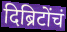
दिब्रिटोंचं